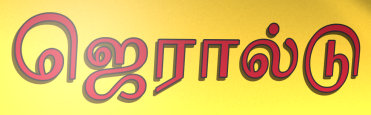
ஜெரால்டு